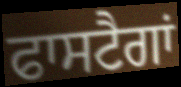
ਫਾਸਟੈਗਾਂ